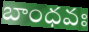
బాంధవః